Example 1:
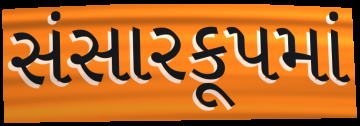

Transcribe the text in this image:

સંસારકૂપમાં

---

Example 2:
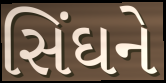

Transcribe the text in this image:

સિંઘને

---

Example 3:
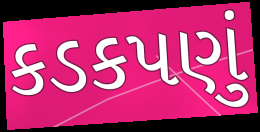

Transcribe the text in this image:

કડકપણું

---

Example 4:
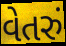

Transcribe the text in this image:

વેતરું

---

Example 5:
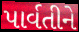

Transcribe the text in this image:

પાર્વતીને